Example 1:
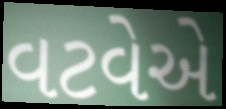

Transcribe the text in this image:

વટવેએ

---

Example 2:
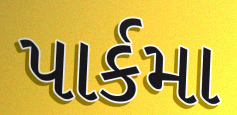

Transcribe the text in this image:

પાર્કમા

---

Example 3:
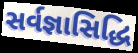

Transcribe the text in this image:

સર્વજ્ઞાસિદ્ધિ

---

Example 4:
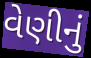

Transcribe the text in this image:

વેણીનું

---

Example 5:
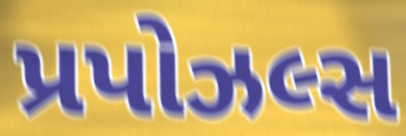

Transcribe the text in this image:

પ્રપોઝલ્સ